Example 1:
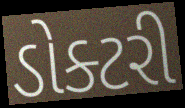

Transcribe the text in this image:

ડોક્ટરી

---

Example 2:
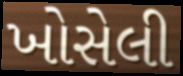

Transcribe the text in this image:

ખોસેલી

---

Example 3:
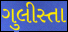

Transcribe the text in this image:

ગુલીસ્તા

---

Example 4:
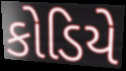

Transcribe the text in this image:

કોડિયે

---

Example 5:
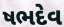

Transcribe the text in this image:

ષભદેવ